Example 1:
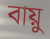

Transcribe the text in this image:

বায়ু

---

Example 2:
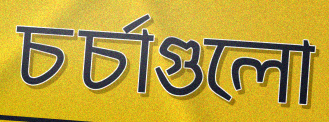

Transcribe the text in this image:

চর্চাগুলো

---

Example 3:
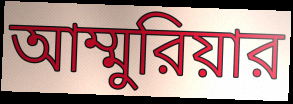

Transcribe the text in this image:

আম্মুরিয়ার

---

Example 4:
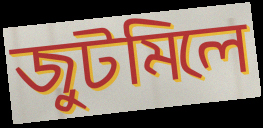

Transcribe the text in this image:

জুটমিলে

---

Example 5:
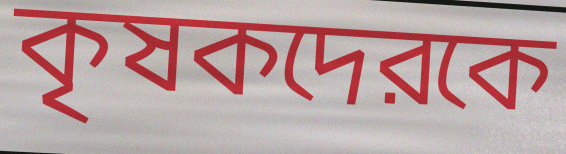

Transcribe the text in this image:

কৃষকদেরকে